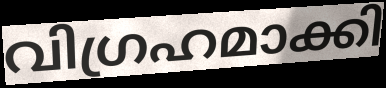
വിഗ്രഹമാക്കി